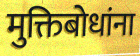
मुक्तिबोधांना